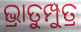
ଭ୍ରାତୁମ୍ପୁତ୍ର